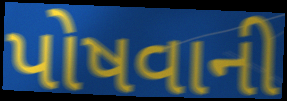
પોષવાની